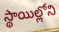
స్థాయిల్లోని